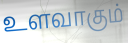
உளவாகும்